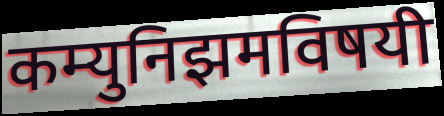
कम्युनिझमविषयी